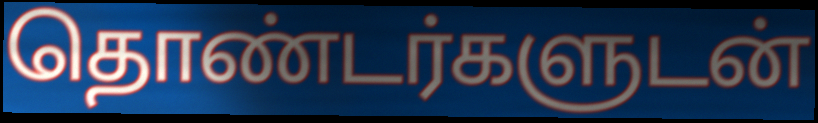
தொண்டர்களுடன்